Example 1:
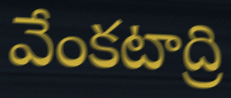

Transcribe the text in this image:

వేంకటాద్రి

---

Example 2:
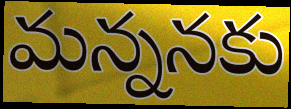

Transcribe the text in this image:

మన్ననకు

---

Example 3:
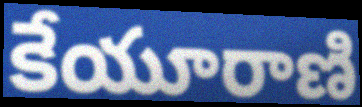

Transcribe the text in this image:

కేయూరాణి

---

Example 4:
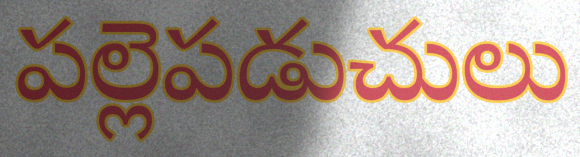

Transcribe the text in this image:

పల్లెపడుచులు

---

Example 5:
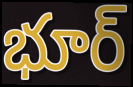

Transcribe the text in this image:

భూర్